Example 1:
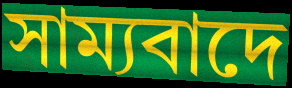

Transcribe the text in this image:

সাম্যবাদে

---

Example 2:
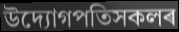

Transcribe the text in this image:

উদ্যোগপতিসকলৰ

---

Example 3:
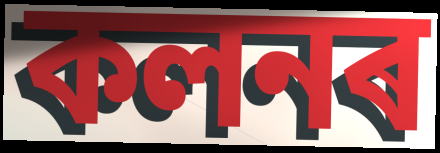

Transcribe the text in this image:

কলনৰ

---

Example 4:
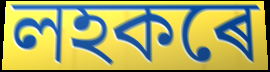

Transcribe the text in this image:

লহকৰে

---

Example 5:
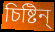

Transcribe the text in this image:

চিষ্টিন্